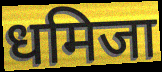
धमिजा